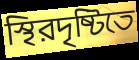
স্থিরদৃষ্টিতে